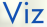
Viz